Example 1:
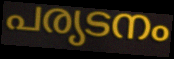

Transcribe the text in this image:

പര്യടനം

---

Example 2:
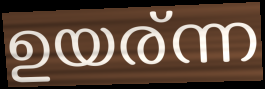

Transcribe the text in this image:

ഉയര്ന്ന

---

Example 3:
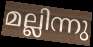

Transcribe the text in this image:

മല്ലിന്നു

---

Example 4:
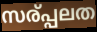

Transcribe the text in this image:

സര്പ്പലത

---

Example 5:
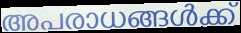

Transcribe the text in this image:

അപരാധങ്ങൾക്ക്